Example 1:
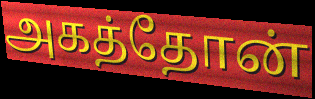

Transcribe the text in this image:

அகத்தோன்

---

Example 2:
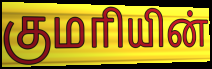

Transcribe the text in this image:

குமரியின்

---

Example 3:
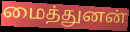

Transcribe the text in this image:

மைத்துனன்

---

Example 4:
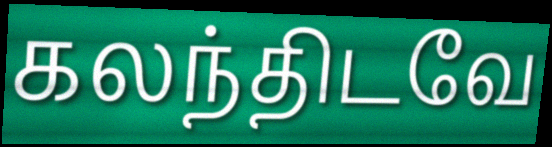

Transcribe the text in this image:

கலந்திடவே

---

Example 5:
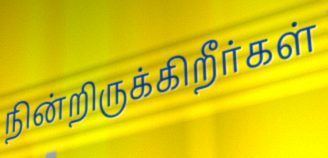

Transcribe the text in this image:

நின்றிருக்கிறீர்கள்